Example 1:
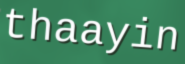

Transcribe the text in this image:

thaayin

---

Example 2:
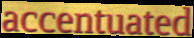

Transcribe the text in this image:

accentuated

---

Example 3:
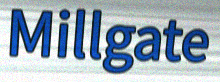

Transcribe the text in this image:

Millgate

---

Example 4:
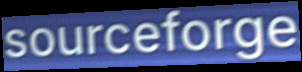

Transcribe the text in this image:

sourceforge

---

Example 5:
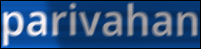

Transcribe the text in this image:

parivahan